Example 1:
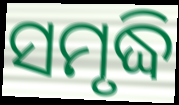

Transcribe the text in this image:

ସମୃଦ୍ଧି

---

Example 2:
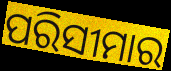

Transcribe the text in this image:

ପରିସୀମାର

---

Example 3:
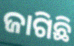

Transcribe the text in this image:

ଜାଗିଛି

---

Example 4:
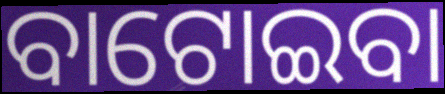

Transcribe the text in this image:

ବାଟୋଇବା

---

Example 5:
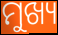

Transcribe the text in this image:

ମୁଖ୍ୟ